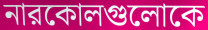
নারকোলগুলোকে